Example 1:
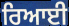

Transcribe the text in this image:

ਰਿਆਈ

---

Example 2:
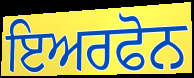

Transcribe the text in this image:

ਇਅਰਫੋਨ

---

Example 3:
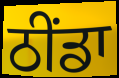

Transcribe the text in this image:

ਠੀਂਡਾ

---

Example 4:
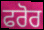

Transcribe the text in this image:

ਫਰੋਰ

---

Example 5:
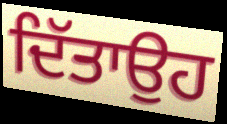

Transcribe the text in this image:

ਦਿੱਤਾਉਹ